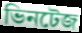
ভিনটেজ